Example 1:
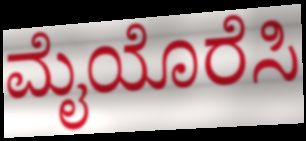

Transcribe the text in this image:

ಮೈಯೊರೆಸಿ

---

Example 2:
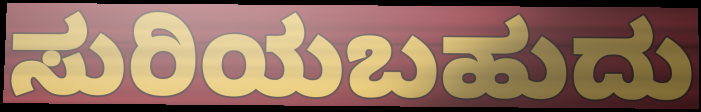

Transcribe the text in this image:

ಸುರಿಯಬಹುದು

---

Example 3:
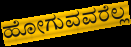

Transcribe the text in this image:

ಹೋಗುವವರೆಲ್ಲ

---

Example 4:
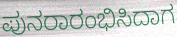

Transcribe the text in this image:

ಪುನರಾರಂಭಿಸಿದಾಗ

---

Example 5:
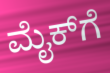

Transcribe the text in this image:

ಮೈಕ್‌ಗೆ